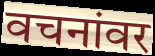
वचनांवर